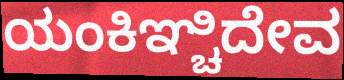
ಯಂಕಿಞ್ಚಿದೇವ